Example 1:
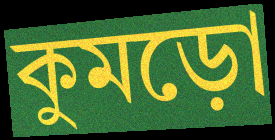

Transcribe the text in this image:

কুমড়ো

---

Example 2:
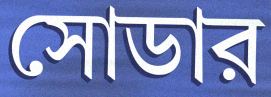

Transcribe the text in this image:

সোডার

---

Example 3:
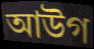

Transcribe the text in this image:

আউগ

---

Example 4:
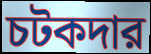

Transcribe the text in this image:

চটকদার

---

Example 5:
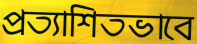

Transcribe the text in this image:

প্রত্যাশিতভাবে